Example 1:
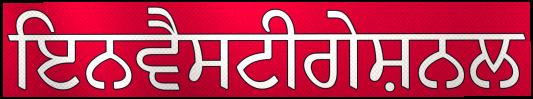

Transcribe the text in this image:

ਇਨਵੈਸਟੀਗੇਸ਼ਨਲ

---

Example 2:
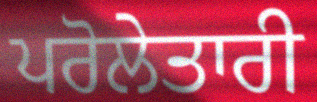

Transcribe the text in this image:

ਪਰੋਲੇਤਾਰੀ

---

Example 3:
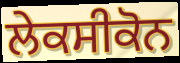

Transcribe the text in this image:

ਲੇਕਸੀਕੋਨ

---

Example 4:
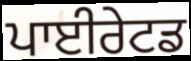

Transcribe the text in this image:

ਪਾਈਰੇਟਡ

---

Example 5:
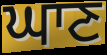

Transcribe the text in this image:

ਘਾਣ